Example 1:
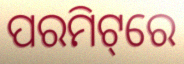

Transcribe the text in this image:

ପରମିଟ୍‌ରେ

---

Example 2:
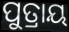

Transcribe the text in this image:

ପୁତ୍ରାୟ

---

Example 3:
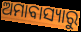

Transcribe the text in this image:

ଅମାବାସ୍ୟାରୁ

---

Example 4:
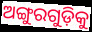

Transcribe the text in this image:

ଅଙ୍ଗୁରଗୁଡ଼ିକୁ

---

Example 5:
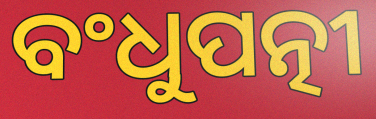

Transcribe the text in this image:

ବଂଧୁପତ୍ନୀ